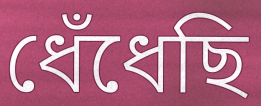
ধেঁধেছি